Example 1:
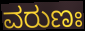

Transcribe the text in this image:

ವರುಣಃ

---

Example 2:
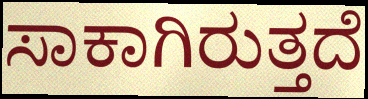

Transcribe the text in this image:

ಸಾಕಾಗಿರುತ್ತದೆ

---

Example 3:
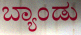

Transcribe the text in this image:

ಬ್ಯಾಂಡು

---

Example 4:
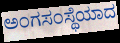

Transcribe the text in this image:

ಅಂಗಸಂಸ್ಥೆಯಾದ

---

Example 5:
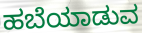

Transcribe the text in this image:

ಹಬೆಯಾಡುವ